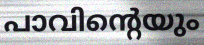
പാവിന്റെയും